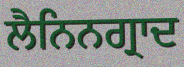
ਲੈਨਿਨਗ੍ਰਾਦ